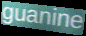
guanine